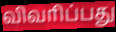
விவரிப்பது